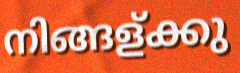
നിങ്ങള്ക്കു